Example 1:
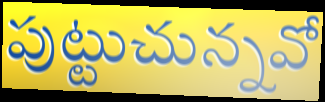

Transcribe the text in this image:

పుట్టుచున్నవో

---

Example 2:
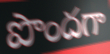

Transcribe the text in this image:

పొందగా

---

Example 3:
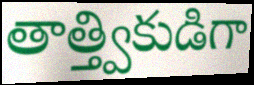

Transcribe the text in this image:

తాత్త్వికుడిగా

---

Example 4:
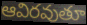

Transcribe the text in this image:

ఆవిరవుతూ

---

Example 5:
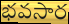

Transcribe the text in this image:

భవసార